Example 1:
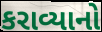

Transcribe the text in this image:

કરાવ્યાનો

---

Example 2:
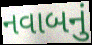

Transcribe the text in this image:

નવાબનું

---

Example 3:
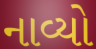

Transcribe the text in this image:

નાવ્યો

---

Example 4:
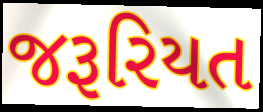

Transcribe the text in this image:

જરૂરિયત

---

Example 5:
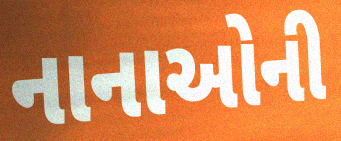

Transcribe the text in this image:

નાનાઓની